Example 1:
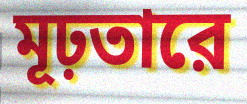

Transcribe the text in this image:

মূঢ়তারে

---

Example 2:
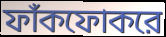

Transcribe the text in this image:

ফাঁকফোকরে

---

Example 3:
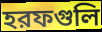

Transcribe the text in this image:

হরফগুলি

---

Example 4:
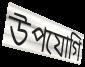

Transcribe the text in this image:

উপযোগি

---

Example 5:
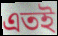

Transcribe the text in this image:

এতই